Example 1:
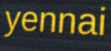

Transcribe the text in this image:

yennai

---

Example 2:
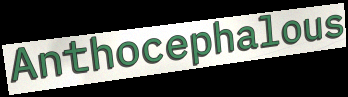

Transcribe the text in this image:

Anthocephalous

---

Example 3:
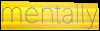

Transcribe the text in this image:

mentally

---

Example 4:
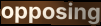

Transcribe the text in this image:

opposing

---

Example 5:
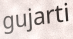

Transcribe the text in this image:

gujarti